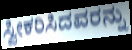
ಸ್ವೀಕರಿಸಿದವರನ್ನು